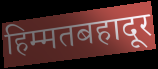
हिम्मतबहादूर